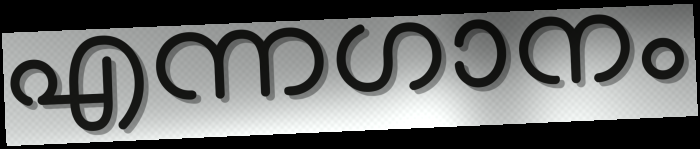
എന്നഗാനം